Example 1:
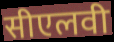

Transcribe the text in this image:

सीएलवी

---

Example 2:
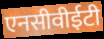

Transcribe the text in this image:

एनसीवीईटी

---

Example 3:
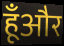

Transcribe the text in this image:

हूँऔर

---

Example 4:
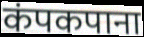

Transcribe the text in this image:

कंपकपाना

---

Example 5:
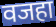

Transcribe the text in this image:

वजहा